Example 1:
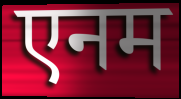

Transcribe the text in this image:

एनम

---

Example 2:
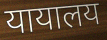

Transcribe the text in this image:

यायालय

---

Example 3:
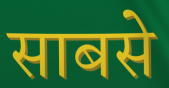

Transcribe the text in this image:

साबसे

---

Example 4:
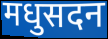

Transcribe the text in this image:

मधुसदन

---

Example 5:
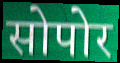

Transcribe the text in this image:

सोपोर